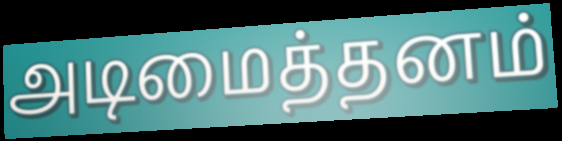
அடிமைத்தனம்